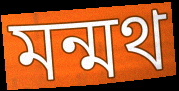
মন্মথ